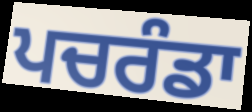
ਪਚਰੰਡਾ